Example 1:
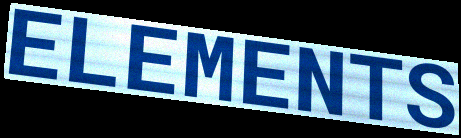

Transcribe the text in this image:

ELEMENTS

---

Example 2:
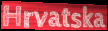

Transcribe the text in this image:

Hrvatska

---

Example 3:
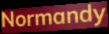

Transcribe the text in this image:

Normandy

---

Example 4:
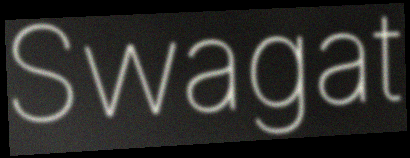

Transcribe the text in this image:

Swagat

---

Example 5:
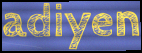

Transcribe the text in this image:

adiyen